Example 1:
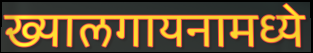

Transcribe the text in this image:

ख्यालगायनामध्ये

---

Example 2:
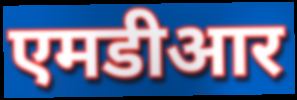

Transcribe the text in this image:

एमडीआर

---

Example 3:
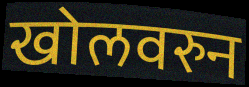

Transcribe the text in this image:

खोलवरुन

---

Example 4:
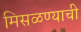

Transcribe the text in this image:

मिसळण्याची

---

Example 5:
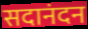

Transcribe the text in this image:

सदानंदन